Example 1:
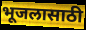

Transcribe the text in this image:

भूजलासाठी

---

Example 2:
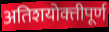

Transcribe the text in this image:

अतिशयोक्‍तीपूर्ण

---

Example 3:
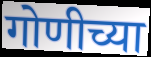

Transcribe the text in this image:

गोणीच्या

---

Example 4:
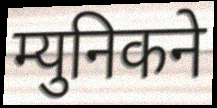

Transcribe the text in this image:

म्युनिकने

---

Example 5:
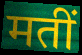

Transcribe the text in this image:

मतीं